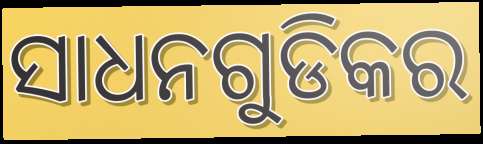
ସାଧନଗୁଡିକର